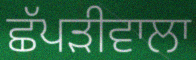
ਛੱਪੜੀਵਾਲਾ